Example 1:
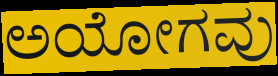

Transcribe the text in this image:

ಅಯೋಗವು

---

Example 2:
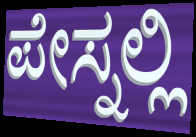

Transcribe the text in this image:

ಪೇಸ್ನಲ್ಲಿ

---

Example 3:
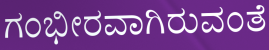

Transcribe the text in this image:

ಗಂಭೀರವಾಗಿರುವಂತೆ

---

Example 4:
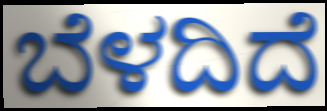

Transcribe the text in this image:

ಬೆಳದಿದೆ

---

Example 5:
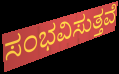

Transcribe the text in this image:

ಸಂಭವಿಸುತ್ತವೆ